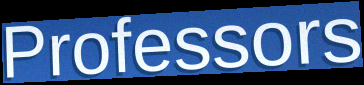
Professors